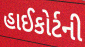
હાઈકોર્ટની